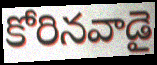
కోరినవాడై